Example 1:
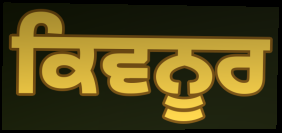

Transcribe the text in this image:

ਕਿਵਨੂਰ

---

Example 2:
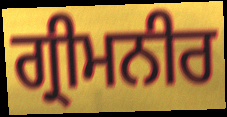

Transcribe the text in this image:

ਗ੍ਰੀਮਨੀਰ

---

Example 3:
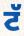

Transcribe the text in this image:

ਟੱ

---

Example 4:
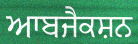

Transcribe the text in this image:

ਆਬਜੈਕਸ਼ਨ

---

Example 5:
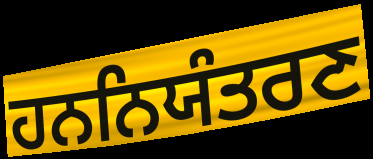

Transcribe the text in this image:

ਹਨਨਿਯੰਤਰਣ